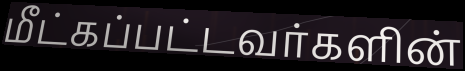
மீட்கப்பட்டவர்களின்